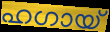
ഹഗായ്